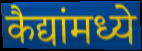
कैद्यांमध्ये